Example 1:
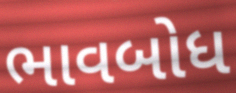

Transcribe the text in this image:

ભાવબોધ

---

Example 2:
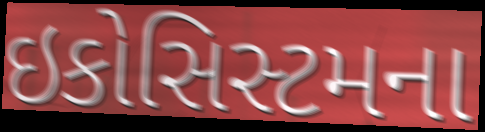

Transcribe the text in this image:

ઇકોસિસ્ટમના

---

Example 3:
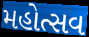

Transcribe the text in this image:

મહોત્સવ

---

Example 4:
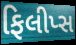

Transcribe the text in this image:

ફિલીપ્સ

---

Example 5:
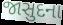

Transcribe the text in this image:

જાસુદના